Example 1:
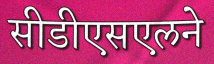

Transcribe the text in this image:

सीडीएसएलने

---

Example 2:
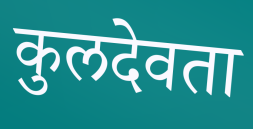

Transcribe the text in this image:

कुलदेवता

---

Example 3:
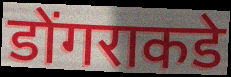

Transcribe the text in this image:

डोंगराकडे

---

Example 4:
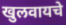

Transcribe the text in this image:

खुलवायचे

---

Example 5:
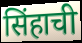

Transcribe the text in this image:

सिंहाची